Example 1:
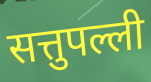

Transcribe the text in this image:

सत्तुपल्ली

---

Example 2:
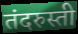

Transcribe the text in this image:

तंदरुस्ती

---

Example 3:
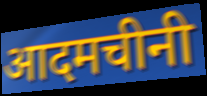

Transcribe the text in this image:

आदमचीनी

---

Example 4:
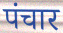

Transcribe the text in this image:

पंचार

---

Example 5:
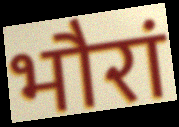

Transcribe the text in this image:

भौरां